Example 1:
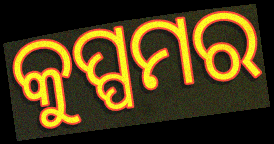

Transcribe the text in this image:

କୁପ୍ପମର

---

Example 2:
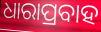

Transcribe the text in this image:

ଧାରାପ୍ରବାହ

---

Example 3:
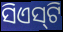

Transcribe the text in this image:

ସିଏସ୍‌ଟି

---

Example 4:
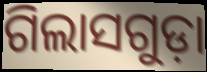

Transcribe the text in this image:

ଗିଲାସଗୁଡ଼ା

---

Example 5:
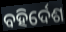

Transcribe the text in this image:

ବହିର୍ଦେଶ